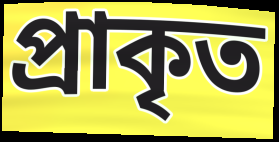
প্রাকৃত